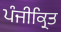
ਪੰਜੀਕ੍ਰਿਤ